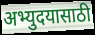
अभ्युदयासाठी